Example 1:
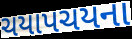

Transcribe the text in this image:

ચયાપચયના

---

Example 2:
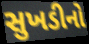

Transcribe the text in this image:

સુખડીનો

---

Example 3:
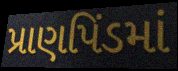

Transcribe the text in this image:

પ્રાણપિંડમાં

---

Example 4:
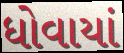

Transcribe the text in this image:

ધોવાયાં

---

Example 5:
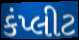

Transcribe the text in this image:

કંપ્લીટ